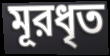
মূরধৃত